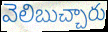
వెలిబుచ్చారు